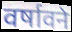
वर्षावने